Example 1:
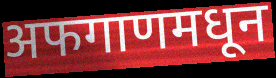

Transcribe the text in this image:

अफगाणमधून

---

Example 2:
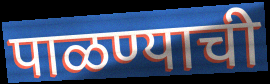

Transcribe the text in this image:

पाळण्याची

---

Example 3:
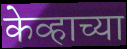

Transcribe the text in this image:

केव्हाच्या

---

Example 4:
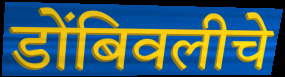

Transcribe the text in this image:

डोंबिवलीचे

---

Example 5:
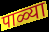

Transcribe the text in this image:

पाळ्या